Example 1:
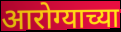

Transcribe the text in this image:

आरोग्याच्या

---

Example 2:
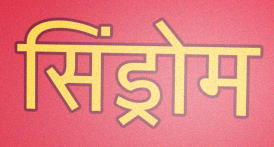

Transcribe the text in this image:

सिंड्रोम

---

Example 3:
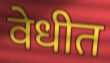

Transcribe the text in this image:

वेधीत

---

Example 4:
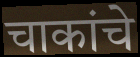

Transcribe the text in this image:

चाकांचे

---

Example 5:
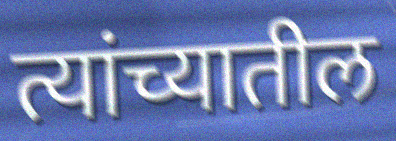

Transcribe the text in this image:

त्यांच्यातील